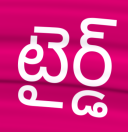
టైర్డ్